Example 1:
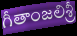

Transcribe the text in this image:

గీతాంజలిశ్రీ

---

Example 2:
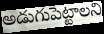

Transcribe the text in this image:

అడుగుపెట్టాలని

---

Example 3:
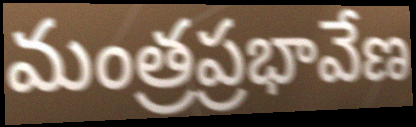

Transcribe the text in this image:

మంత్రప్రభావేణ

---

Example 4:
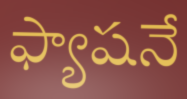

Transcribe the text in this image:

ఫ్యాషనే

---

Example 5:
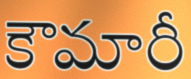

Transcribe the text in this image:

కౌమారీ